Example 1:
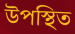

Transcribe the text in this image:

উপস্থিত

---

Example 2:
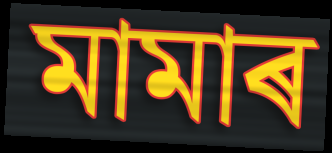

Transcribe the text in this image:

মামাৰ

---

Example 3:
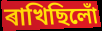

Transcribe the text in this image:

ৰাখিছিলোঁ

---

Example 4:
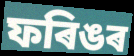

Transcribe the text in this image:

ফৰিঙৰ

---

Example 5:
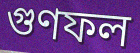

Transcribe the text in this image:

গুণফল